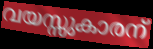
വയസ്സുകാരന്